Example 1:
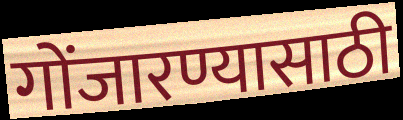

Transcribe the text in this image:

गोंजारण्यासाठी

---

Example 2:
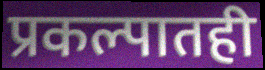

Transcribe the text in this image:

प्रकल्पातही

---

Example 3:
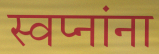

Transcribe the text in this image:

स्वप्नांना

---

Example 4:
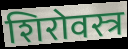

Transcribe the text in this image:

शिरोवस्त्र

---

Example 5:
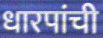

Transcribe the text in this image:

धारपांची